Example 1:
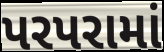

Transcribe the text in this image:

પરપરામાં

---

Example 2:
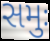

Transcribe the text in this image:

સમુઃ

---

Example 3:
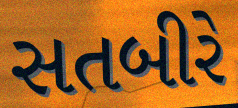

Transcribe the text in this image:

સતબીરે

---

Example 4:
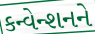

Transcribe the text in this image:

કન્વેન્શનને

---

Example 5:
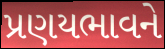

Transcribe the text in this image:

પ્રણયભાવને